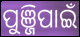
ପୁଞ୍ଜିପାଇଁ